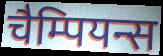
चैम्पियन्स